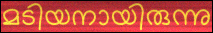
മടിയനായിരുന്നു